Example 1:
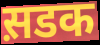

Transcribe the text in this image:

स़डक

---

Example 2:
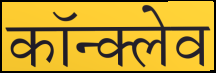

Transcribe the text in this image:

कॉन्क्लेव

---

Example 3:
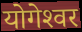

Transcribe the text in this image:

योगेश्‍वर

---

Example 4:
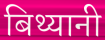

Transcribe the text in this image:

बिथ्यानी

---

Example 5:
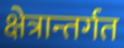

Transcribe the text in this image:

क्षेत्रान्तर्गत